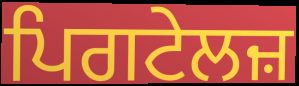
ਪਿਗਟੇਲਜ਼